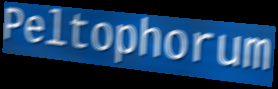
Peltophorum